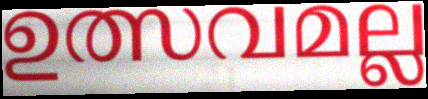
ഉത്സവമല്ല